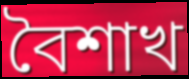
বৈশাখ